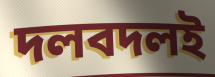
দলবদলই